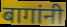
बागांनी